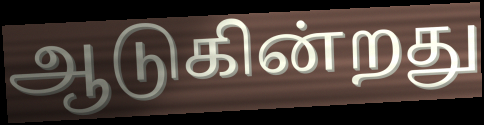
ஆடுகின்றது